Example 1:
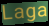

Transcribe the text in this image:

Laga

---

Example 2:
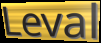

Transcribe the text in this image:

Leval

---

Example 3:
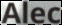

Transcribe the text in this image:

Alec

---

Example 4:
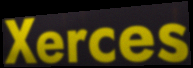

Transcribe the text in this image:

Xerces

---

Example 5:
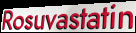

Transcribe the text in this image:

Rosuvastatin